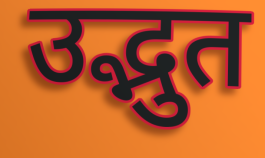
उद्भुत